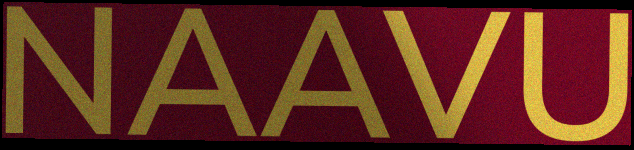
NAAVU